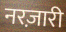
नरज़ारी